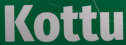
Kottu